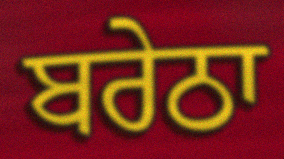
ਬਰੇਠਾ